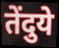
तेंदुये